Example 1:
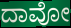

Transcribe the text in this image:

ದಾವೋ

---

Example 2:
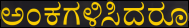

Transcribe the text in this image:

ಅಂಕಗಳಿಸಿದರೂ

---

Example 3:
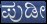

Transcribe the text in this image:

ಪುಡೀ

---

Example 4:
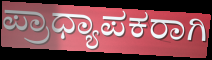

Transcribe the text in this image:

ಪ್ರಾಧ್ಯಾಪಕರಾಗಿ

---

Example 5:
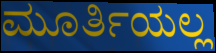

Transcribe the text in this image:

ಮೂರ್ತಿಯಲ್ಲ